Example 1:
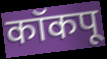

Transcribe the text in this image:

कॉकपू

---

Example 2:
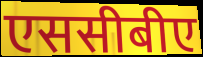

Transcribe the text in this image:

एससीबीए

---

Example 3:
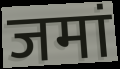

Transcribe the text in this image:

जमां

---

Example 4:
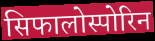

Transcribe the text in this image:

सिफालोस्पोरिन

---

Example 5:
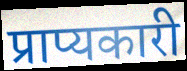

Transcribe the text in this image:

प्राप्यकारी